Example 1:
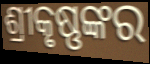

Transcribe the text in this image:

ଶ୍ରୀକୃଷ୍ଣଙ୍କର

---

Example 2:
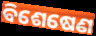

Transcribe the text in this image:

ବିଶେଷେଣ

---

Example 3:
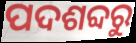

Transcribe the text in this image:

ପଦଶବ୍ଦରୁ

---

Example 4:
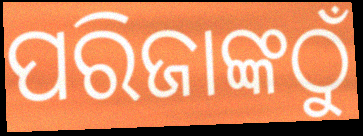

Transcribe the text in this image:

ପରିଜାଙ୍କଠୁଁ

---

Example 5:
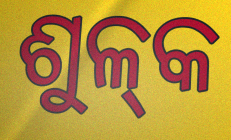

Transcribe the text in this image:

ଶୁଳ୍‌କ